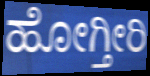
ಹೋಗ್ತೀರಿ